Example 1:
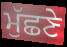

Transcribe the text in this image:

ਮੁੱਛਣੇ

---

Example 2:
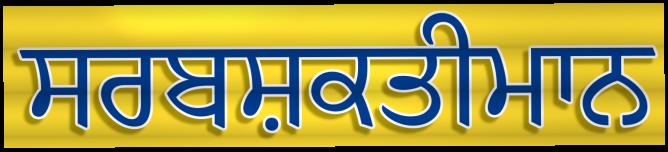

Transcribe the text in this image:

ਸਰਬਸ਼ਕਤੀਮਾਨ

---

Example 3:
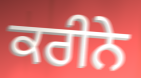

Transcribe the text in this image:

ਕਰੀਨੇ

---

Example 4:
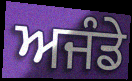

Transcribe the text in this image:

ਅਜੰਡੇ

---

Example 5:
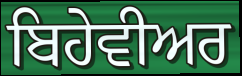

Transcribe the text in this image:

ਬਿਹੇਵੀਅਰ